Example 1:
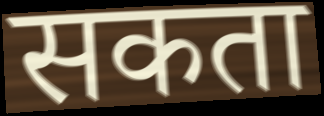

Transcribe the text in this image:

सकता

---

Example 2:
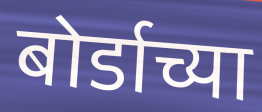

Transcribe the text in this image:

बोर्डाच्या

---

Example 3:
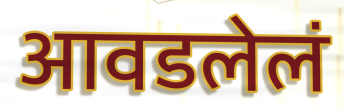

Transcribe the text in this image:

आवडलेलं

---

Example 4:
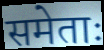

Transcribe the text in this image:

समेताः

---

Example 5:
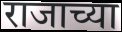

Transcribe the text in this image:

राजाच्या